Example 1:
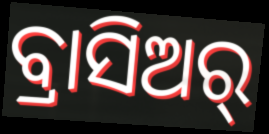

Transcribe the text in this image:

ବ୍ରାସିଅର୍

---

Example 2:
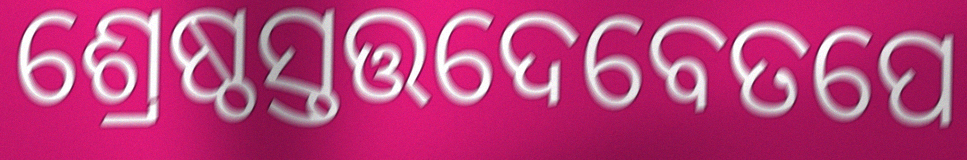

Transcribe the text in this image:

ଶ୍ରେଷ୍ଠସ୍ତତ୍ତଦେବେତପେ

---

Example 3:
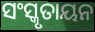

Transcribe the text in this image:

ସଂସ୍କୃତାୟନ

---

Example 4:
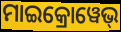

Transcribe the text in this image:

ମାଇକ୍ରୋୱେଭ୍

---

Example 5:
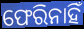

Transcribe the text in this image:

ଫେରିନାହିଁ